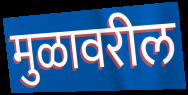
मुळावरील